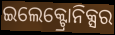
ଇଲେକ୍ଟ୍ରୋନିକ୍ସର